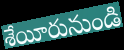
శేయీరునుండి